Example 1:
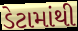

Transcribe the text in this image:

ડેટામાંથી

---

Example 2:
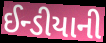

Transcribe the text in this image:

ઈન્ડીયાની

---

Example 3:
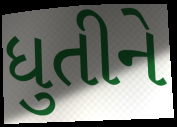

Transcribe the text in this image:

ધુતીને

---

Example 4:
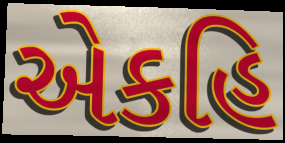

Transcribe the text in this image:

એકહિ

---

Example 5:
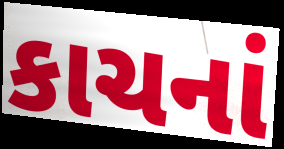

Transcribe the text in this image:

કાચનાં